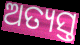
ଅତ୍ୟସ୍ତ